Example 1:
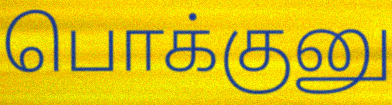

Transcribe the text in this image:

பொக்குனு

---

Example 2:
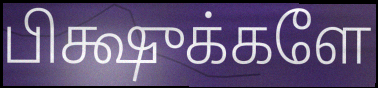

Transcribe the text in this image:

பிக்ஷுக்களே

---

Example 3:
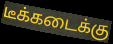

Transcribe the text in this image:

டீக்கடைக்கு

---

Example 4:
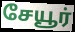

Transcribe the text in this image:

சேயூர்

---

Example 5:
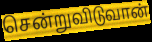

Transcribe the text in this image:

சென்றுவிடுவான்